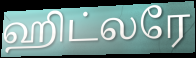
ஹிட்லரே